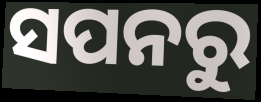
ସପନରୁ